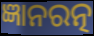
ଜ୍ଞାନରତ୍ନ